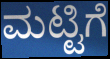
ಮಟ್ಟಿಗೆ